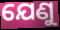
ଯେଣୁ